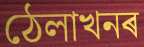
ঠেলাখনৰ